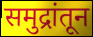
समुद्रांतून